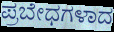
ಪ್ರಬೇಧಗಳಾದ